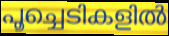
പൂച്ചെടികളിൽ